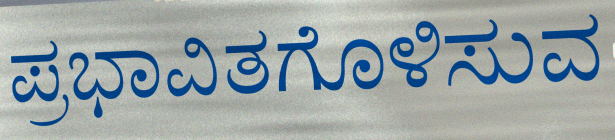
ಪ್ರಭಾವಿತಗೊಳಿಸುವ